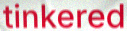
tinkered